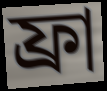
ফ্রা